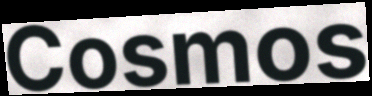
Cosmos